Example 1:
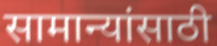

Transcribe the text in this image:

सामान्यांसाठी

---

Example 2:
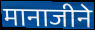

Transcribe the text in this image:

मानाजीने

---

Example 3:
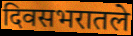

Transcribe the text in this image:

दिवसभरातले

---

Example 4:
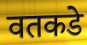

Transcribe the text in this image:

वतकडे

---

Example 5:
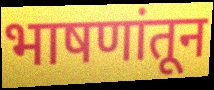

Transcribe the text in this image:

भाषणांतून